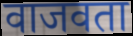
वाजवता